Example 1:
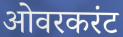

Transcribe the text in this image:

ओवरकरंट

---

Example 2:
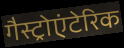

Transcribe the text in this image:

गैस्ट्रोएंटेरिक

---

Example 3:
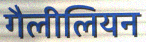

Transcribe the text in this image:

गैलीलियन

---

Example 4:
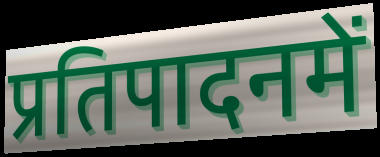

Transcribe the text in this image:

प्रतिपादनमें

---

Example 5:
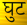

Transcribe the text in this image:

घुट